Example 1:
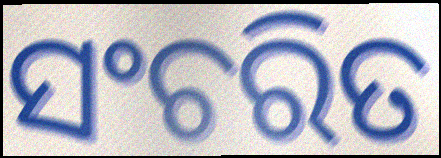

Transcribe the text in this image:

ସଂଚରିତ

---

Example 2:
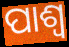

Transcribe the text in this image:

ପାଶ୍ୱ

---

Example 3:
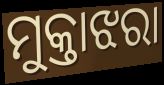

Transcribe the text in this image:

ମୁକ୍ତାଝରା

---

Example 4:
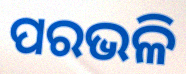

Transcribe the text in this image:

ପରଭଳି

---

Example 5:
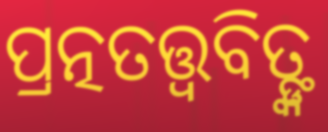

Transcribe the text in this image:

ପ୍ରତ୍ନତତ୍ତ୍ୱବିତ୍ଙ୍କ